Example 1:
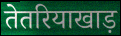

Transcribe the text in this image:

तेतरियाखाड़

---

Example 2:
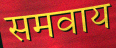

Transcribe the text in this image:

समवाय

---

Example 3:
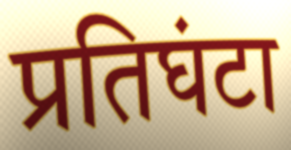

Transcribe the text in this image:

प्रतिघंटा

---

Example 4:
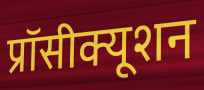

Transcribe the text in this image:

प्रॉसीक्यूशन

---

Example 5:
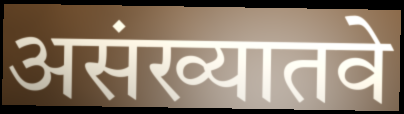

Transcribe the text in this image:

असंख्यातवे